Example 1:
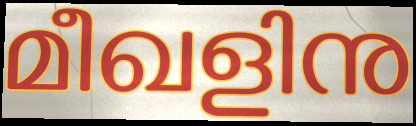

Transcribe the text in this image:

മീഖളിനു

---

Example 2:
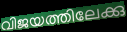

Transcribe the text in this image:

വിജയത്തിലേക്കു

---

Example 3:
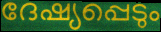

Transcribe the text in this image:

ദേഷ്യപ്പെടും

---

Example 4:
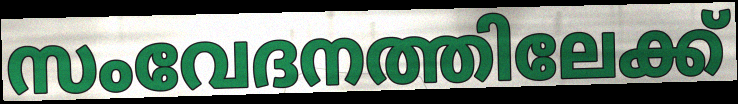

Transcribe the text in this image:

സംവേദനത്തിലേക്ക്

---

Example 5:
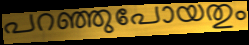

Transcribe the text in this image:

പറഞ്ഞുപോയതും